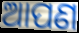
ଆପଣ